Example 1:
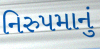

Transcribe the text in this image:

નિરુપમાનું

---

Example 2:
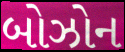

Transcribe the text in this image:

બોઝોન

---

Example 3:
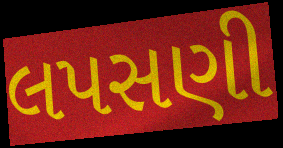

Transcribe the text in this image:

લપસણી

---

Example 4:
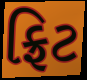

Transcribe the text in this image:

ફ્રિટ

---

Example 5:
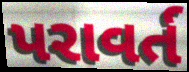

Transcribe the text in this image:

પરાવર્ત